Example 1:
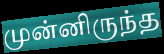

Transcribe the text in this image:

முன்னிருந்த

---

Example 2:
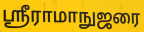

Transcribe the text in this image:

ஸ்ரீராமாநுஜரை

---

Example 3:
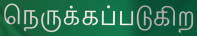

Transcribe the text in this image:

நெருக்கப்படுகிற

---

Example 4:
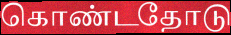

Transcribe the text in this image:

கொண்டதோடு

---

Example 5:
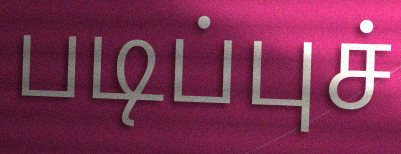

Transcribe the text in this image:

படிப்புச்